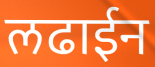
लढाईन